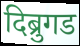
दिब्रुगड